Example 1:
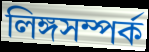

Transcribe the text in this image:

লিঙ্গসম্পর্ক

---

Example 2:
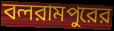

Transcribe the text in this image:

বলরামপুরের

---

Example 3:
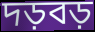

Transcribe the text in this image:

দড়বড়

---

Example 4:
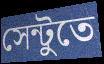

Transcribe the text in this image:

সেন্টুতে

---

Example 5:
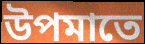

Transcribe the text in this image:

উপমাতে